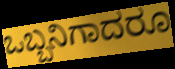
ಒಬ್ಬನಿಗಾದರೂ